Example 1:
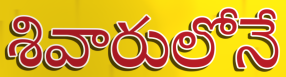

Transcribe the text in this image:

శివారులోనే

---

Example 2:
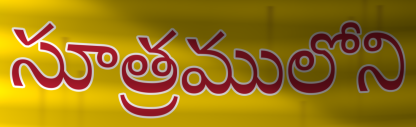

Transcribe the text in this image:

సూత్రములోని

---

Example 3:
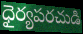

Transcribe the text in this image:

ధైర్యపరచుడి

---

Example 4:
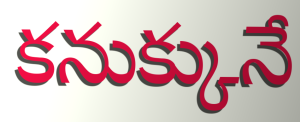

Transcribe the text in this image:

కనుక్కునే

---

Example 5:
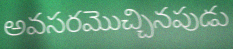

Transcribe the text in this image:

అవసరమొచ్చినపుడు